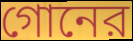
গোনের